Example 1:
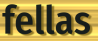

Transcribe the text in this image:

fellas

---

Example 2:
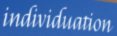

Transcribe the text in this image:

individuation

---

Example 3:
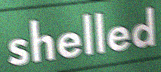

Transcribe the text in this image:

shelled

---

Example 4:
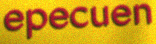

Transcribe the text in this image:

epecuen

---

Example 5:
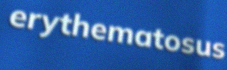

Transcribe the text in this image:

erythematosus